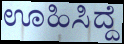
ಊಹಿಸಿದ್ದೆ